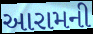
આરામની